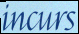
incurs